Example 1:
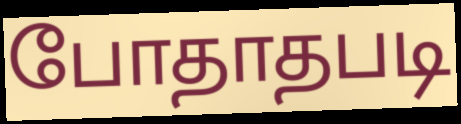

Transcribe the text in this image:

போதாதபடி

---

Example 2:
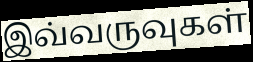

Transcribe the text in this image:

இவ்வருவுகள்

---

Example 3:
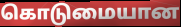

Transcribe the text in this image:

கொடுமையான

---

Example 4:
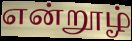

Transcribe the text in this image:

என்றூழ்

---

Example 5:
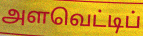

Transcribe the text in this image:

அளவெட்டிப்